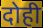
दोही